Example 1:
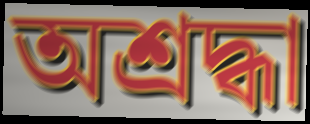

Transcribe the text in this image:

অশ্রদ্ধা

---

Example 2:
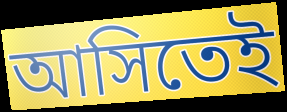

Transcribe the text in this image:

আসিতেই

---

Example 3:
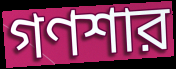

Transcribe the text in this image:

গণশার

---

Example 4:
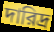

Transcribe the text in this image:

দারিদ্র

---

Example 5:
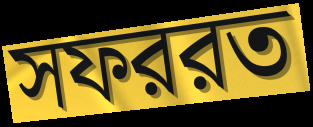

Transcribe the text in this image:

সফররত